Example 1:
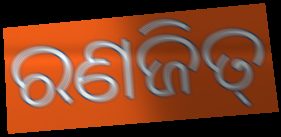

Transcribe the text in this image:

ରଣଜିତ୍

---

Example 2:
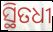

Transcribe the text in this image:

ସ୍ଥିତଧୀ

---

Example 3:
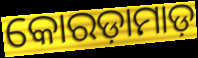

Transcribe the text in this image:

କୋରଡ଼ାମାଡ଼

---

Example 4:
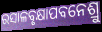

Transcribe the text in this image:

ରସାଳବୃକ୍ଷାପବନେଶ୍ରୁ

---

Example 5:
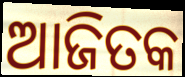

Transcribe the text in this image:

ଆଜିତକ